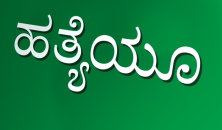
ಹತ್ಯೆಯೂ